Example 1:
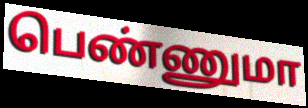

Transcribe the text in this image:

பெண்ணுமா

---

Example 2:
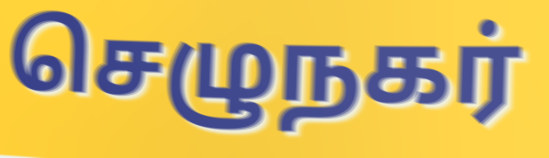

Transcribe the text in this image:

செழுநகர்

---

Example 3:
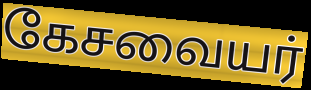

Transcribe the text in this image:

கேசவையர்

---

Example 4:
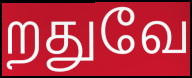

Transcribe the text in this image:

றதுவே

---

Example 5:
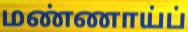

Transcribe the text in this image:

மண்ணாய்ப்